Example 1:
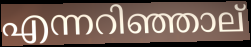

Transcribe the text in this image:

എന്നറിഞ്ഞാല്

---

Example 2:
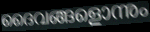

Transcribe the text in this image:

ദൈവങ്ങളൊന്നും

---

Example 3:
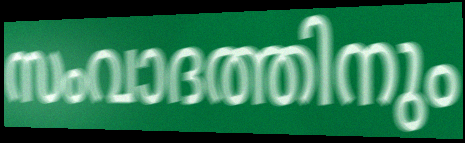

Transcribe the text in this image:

സംവാദത്തിനും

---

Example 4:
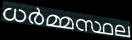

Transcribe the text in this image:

ധർമ്മസ്ഥല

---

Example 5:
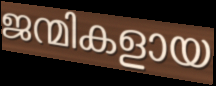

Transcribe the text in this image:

ജന്മികളായ